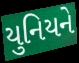
યુનિયને